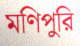
মণিপুরি